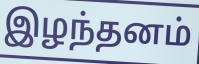
இழந்தனம்